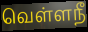
வெள்ளநீ